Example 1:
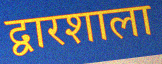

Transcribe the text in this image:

द्वारशाला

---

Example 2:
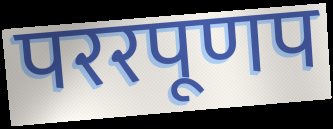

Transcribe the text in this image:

पररपूणप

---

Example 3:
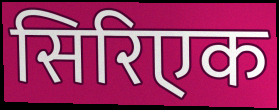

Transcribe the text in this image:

सिरिएक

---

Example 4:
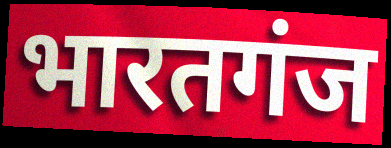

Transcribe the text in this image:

भारतगंज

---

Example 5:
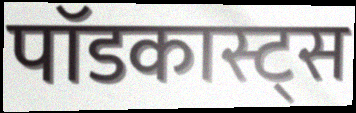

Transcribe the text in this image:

पॉडकास्ट्स